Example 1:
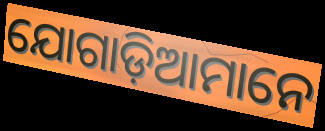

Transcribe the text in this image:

ଯୋଗାଡ଼ିଆମାନେ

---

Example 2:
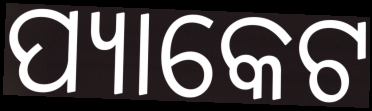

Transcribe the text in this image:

ପ୍ୟାକେଟ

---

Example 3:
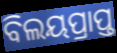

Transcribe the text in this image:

ବିଲୟପ୍ରାପ୍ତ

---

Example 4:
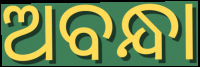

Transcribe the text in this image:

ଅବନ୍ଧା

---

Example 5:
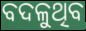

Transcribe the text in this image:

ବଦଳୁଥିବ